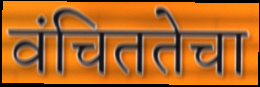
वंचिततेचा